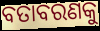
ବତାବରଣକୁ